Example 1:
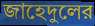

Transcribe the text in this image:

জাহেদুলের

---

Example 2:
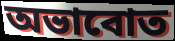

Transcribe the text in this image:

অভাবোত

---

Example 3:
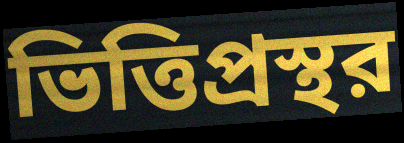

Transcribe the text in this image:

ভিত্তিপ্রস্থর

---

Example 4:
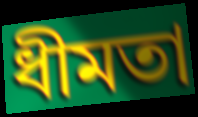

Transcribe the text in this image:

ধীমতা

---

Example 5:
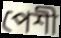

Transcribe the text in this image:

পেশী